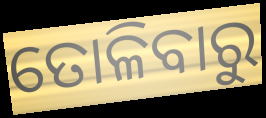
ତୋଳିବାରୁ